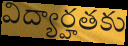
విద్యార్హతకు